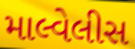
માલ્વેલીસ